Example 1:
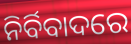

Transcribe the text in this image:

ନିର୍ବିବାଦରେ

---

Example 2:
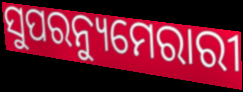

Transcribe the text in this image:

ସୁପରନ୍ୟୁମେରାରୀ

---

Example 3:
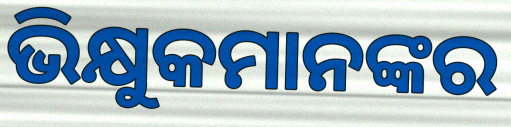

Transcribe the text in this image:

ଭିକ୍ଷୁକମାନଙ୍କର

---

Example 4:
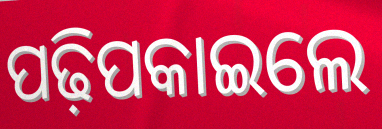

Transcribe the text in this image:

ପଢ଼ିପକାଇଲେ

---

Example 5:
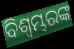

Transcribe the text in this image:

ବିଶ୍ୱମ୍ଭରଙ୍କ